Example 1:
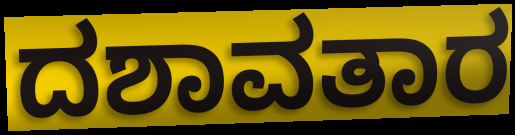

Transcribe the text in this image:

ದಶಾವತಾರ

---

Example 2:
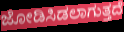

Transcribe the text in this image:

ಜೋಡಿಸಿಡಲಾಗುತ್ತದೆ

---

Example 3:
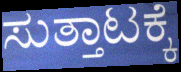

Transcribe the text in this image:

ಸುತ್ತಾಟಕ್ಕೆ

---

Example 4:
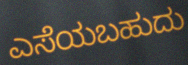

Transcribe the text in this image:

ಎಸೆಯಬಹುದು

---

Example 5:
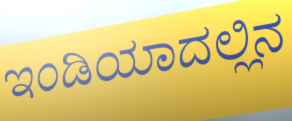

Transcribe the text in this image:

ಇಂಡಿಯಾದಲ್ಲಿನ